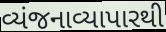
વ્યંજનાવ્યાપારથી